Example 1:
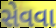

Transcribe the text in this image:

સેવવા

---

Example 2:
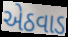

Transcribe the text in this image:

એઠવાડ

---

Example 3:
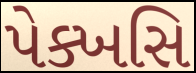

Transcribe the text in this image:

પેક્ખસિ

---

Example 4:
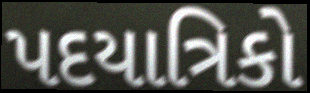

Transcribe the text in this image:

પદયાત્રિકો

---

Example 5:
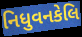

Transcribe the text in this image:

નિધુવનકેલિ